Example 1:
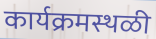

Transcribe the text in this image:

कार्यक्रमस्थळी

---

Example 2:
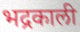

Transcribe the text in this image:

भद्रकाली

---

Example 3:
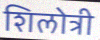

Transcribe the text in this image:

शिलोत्री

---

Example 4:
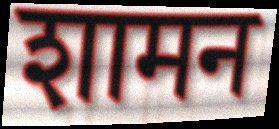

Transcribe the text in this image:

शामन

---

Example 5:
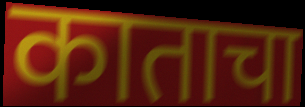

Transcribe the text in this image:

काताचा